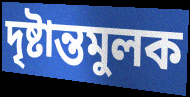
দৃষ্টান্তমুলক